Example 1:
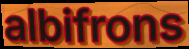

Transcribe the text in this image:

albifrons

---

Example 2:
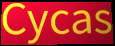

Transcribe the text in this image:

Cycas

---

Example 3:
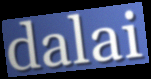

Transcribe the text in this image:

dalai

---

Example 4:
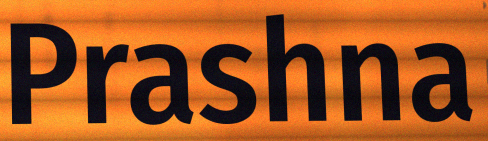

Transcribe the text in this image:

Prashna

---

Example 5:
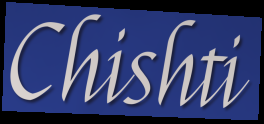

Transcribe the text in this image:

Chishti